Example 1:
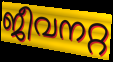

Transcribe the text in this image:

ജീവനറ്റ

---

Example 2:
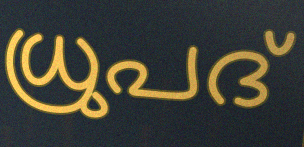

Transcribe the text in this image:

ധ്രുപദ്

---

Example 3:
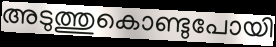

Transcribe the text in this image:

അടുത്തുകൊണ്ടുപോയി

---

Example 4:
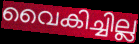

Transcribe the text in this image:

വൈകിച്ചില്ല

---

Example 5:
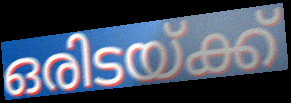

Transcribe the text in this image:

ഒരിടയ്ക്ക്